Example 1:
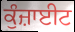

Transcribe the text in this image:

ਕੁੰਜ਼ਾਈਟ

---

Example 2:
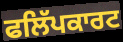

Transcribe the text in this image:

ਫਲਿੱਪਕਾਰਟ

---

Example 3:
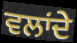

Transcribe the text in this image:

ਵਲਾਂਦੇ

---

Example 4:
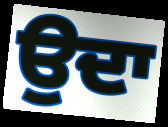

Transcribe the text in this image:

ਉਦਾ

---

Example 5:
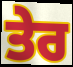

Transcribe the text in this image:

ਤੇਰ